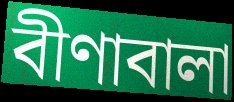
বীণাবালা